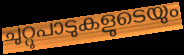
ചുറ്റുപാടുകളുടെയും